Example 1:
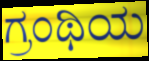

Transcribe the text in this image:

ಗ್ರಂಥಿಯ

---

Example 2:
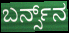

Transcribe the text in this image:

ಬರ್ನ್ಸ್‌ನ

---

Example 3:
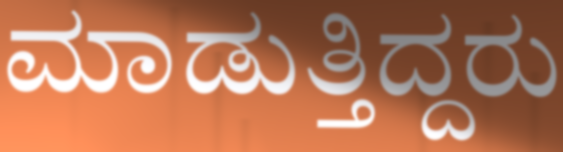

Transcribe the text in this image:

ಮಾಡುತ್ತಿದ್ದರು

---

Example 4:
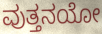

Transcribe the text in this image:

ವುತ್ತನಯೋ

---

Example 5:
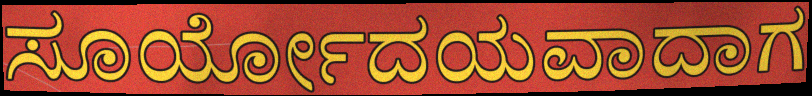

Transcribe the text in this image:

ಸೂರ್ಯೋದಯವಾದಾಗ